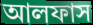
আলফাস